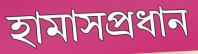
হামাসপ্রধান